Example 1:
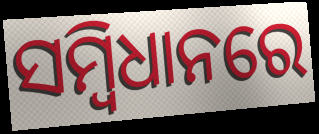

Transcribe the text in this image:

ସମ୍ବିଧାନରେ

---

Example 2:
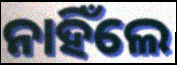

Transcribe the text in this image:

ନାହିଁଲେ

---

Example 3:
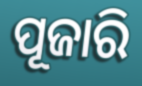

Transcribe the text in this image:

ପୂଜାରି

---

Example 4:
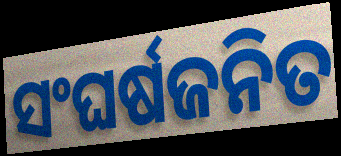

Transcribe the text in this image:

ସଂଘର୍ଷଜନିତ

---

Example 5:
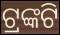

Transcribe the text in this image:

ଟ୍ରଙ୍କଟି